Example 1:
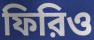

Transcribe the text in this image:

ফিরিও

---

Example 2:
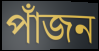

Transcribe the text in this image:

পাঁজন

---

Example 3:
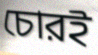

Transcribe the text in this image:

চোরই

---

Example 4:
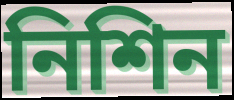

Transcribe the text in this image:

নিশিন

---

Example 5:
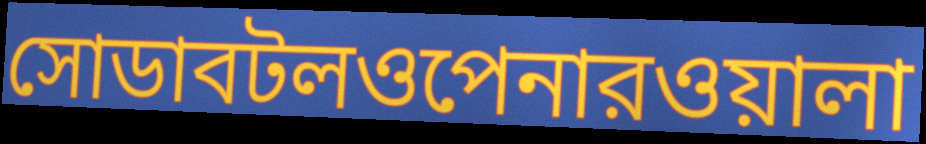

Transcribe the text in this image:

সোডাবটলওপেনারওয়ালা